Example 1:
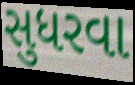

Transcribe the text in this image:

સુધરવા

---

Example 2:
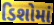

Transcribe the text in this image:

ડિશોમાં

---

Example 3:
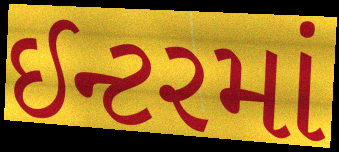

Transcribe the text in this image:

ઈન્ટરમાં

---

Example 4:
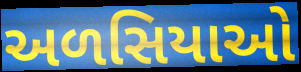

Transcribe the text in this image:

અળસિયાઓ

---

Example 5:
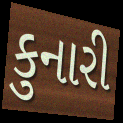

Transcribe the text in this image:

કુનારી